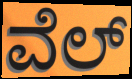
ವೆಲ್